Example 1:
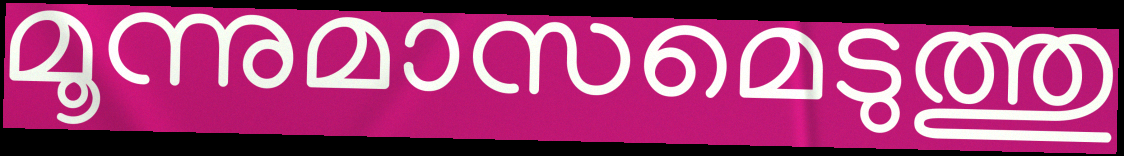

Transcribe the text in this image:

മൂന്നുമാസമെടുത്തു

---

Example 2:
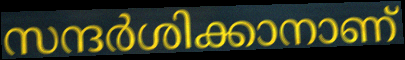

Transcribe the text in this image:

സന്ദർശിക്കാനാണ്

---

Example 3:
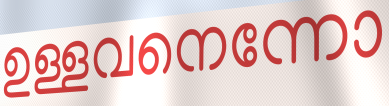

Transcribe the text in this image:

ഉള്ളവനെന്നോ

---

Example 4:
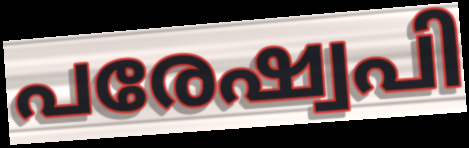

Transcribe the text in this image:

പരേഷ്വപി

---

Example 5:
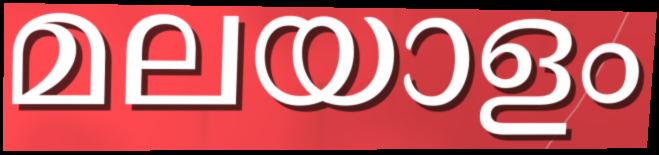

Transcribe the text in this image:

മലയാളം